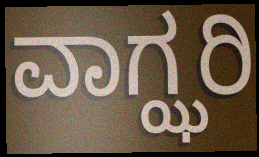
ವಾಗ್ಝರಿ